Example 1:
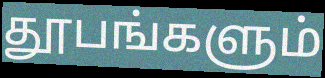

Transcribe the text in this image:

தூபங்களும்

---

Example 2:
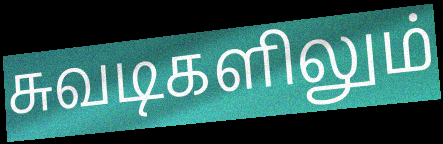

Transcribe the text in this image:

சுவடிகளிலும்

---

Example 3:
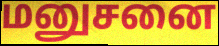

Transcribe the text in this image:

மனுசனை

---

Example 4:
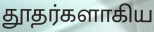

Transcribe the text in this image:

தூதர்களாகிய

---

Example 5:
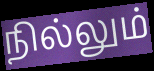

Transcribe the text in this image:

நில்லும்